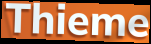
Thieme